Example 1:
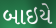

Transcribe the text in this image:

બાઇયે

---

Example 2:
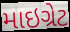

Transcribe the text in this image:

માઇગ્રેટ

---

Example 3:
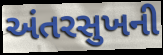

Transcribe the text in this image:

અંતરસુખની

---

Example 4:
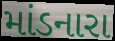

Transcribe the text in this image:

માંડનારા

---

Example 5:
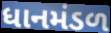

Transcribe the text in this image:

ધાનમંડળ